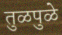
तुळपुळे